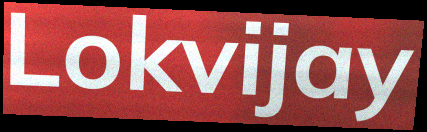
Lokvijay